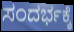
ಸಂದರ್ಭಕ್ಕೆ